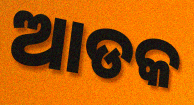
ଆଡକ